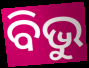
ବିଭୁ